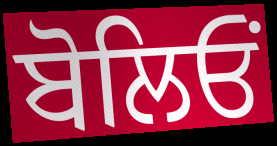
ਬੋਲਿਓਂ